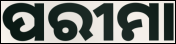
ପରୀମା